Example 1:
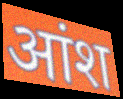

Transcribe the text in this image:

आंश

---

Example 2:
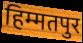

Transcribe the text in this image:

हिम्मतपुर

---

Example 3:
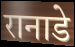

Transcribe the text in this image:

रानाडे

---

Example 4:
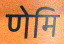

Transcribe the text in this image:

णेमि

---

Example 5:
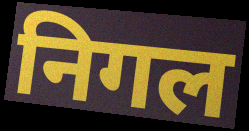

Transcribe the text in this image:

निगल